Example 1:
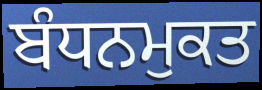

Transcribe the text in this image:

ਬੰਧਨਮੁਕਤ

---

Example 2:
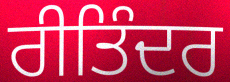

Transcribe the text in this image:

ਰੀਤਿੰਦਰ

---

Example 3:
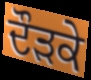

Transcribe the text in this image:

ਦੌੜਕੇ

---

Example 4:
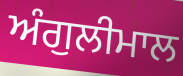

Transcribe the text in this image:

ਅੰਗੁਲੀਮਾਲ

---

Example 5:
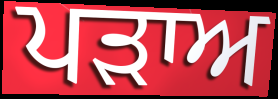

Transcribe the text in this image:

ਪਡ਼ਾਅ